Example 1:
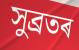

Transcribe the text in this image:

সুব্ৰতৰ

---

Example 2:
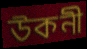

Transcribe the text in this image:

উকনী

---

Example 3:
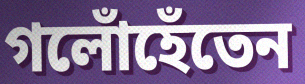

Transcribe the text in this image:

গলোঁহেঁতেন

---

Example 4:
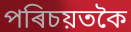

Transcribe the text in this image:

পৰিচয়তকৈ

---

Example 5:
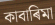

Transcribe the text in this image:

কাবাৰিমা